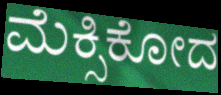
ಮೆಕ್ಸಿಕೋದ